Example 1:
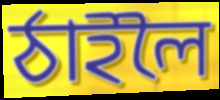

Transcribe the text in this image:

ঠাইলৈ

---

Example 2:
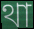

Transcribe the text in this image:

থা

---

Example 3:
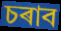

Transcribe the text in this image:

চৰাব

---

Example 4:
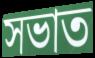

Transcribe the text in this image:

সভাত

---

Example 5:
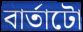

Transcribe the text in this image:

বাৰ্তাটো